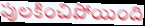
పులకించిపోయింది